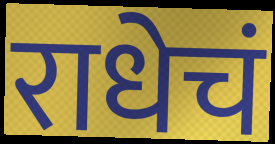
राधेचं